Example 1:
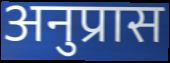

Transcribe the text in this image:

अनुप्रास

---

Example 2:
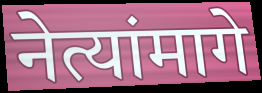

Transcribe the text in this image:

नेत्यांमागे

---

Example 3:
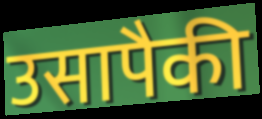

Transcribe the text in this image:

उसापैकी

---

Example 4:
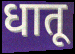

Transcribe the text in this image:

धातू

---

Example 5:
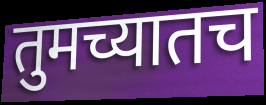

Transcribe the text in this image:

तुमच्यातच